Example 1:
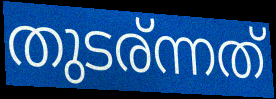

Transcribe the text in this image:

തുടര്ന്നത്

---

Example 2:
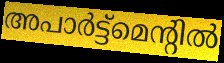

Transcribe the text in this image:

അപാർട്ട്മെന്റിൽ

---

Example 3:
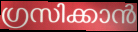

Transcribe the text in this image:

ഗ്രസിക്കാൻ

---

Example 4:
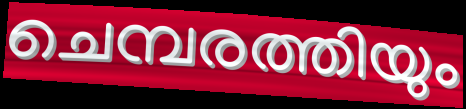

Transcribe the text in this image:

ചെമ്പരത്തിയും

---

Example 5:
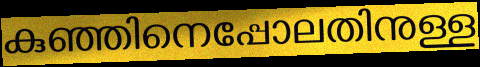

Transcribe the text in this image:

കുഞ്ഞിനെപ്പോലതിനുള്ള